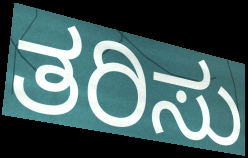
ತರಿಸು